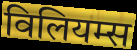
विलियम्‍स